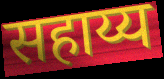
सहाय्य